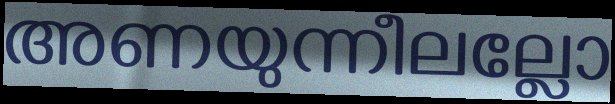
അണയുന്നീലല്ലോ